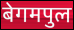
बेगमपुल